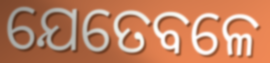
ଯେତେବଳେ